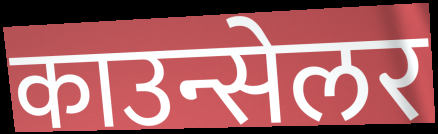
काउन्सेलर